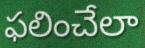
ఫలించేలా